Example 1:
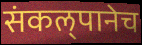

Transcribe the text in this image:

संकल्पानेच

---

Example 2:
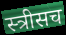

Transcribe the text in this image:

स्त्रीसच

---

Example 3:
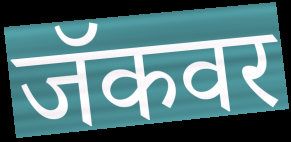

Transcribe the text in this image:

जॅकवर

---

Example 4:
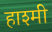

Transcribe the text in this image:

हाश्मी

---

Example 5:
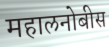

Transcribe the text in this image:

महालनोबीस